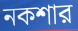
নকশার